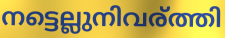
നട്ടെല്ലുനിവര്ത്തി